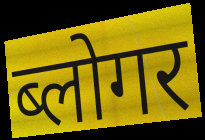
ब्लोगर